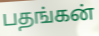
பதங்கன்